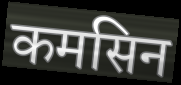
कमसिन